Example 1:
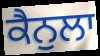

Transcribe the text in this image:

ਕੈਨੁਲਾ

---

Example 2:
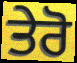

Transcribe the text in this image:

ਤੇਰੋ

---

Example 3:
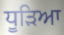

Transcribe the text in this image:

ਧੂੜਿਆ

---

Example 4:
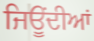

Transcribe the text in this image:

ਜਿਊਂਦੀਆਂ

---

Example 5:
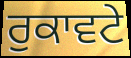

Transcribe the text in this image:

ਰੁਕਾਵਟੇ